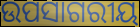
ଉପସାଗରୀୟ